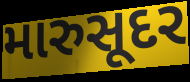
મારુસૂદર